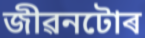
জীৱনটোৰ